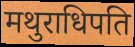
मथुराधिपति